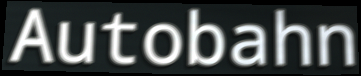
Autobahn